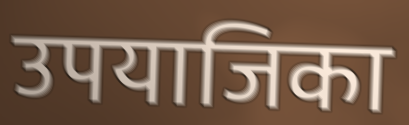
उपयाजिका